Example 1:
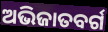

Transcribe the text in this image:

ଅଭିଜାତବର୍ଗ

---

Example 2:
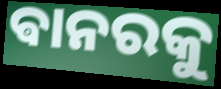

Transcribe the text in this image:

ଵାନରକୁ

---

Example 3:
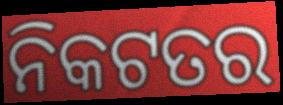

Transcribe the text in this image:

ନିକଟତର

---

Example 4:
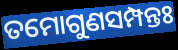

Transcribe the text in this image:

ତମୋଗୁଣସମ୍ପନ୍ତଃ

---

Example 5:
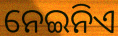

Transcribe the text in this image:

ନେଇନିଏ